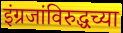
इंग्रजांविरुद्धच्या